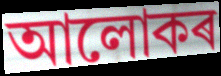
আলোকৰ